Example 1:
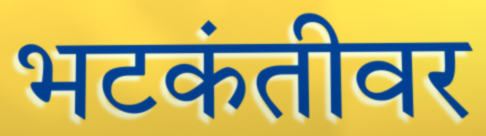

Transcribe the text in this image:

भटकंतीवर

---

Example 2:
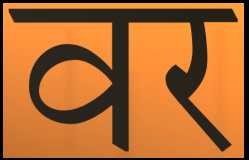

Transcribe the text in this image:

वर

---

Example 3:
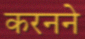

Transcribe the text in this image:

करनने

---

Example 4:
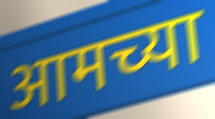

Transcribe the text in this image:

आमच्या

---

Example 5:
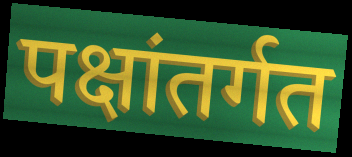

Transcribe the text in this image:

पक्षांतर्गत